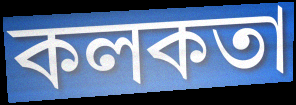
কলকতা